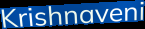
Krishnaveni